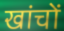
खांचों